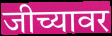
जीच्यावर